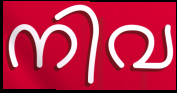
നിവ